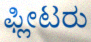
ಫ್ಲೀಟರು